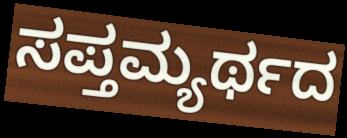
ಸಪ್ತಮ್ಯರ್ಥದ